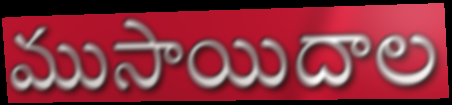
ముసాయిదాల